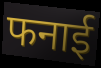
फनाई